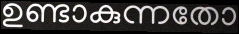
ഉണ്ടാകുന്നതോ